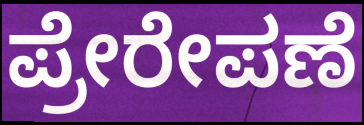
ಪ್ರೇರೇಪಣೆ